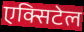
एक्सिटेल